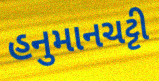
હનુમાનચટ્ટી